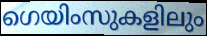
ഗെയിംസുകളിലും